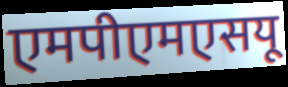
एमपीएमएसयू